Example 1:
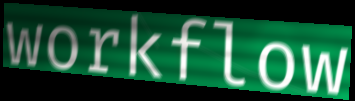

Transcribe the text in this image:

workflow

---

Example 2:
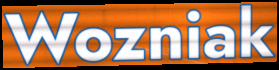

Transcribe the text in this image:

Wozniak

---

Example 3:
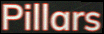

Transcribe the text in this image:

Pillars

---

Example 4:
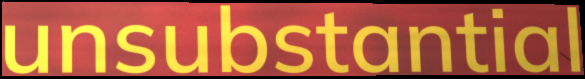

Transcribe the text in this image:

unsubstantial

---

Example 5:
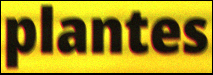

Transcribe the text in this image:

plantes